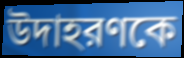
উদাহরণকে